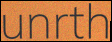
unrth